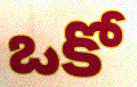
ఒకో